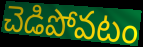
చెడిపోవటం